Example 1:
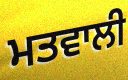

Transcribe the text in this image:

ਮਤਵਾਲੀ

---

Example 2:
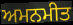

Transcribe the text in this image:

ਅਮਨਮੀਤ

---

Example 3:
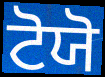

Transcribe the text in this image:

ਟੋਯੋ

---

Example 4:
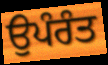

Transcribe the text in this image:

ਉਪੰਰੰਤ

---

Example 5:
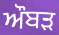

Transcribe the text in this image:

ਔਬੜ